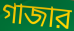
গাজার